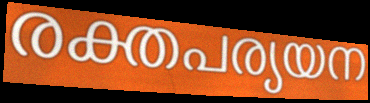
രക്തപര്യയന